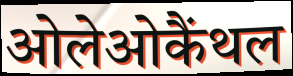
ओलेओकैंथल